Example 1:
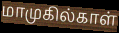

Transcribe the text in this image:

மாமுகில்காள்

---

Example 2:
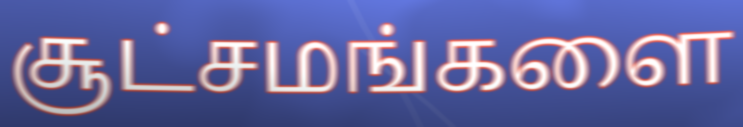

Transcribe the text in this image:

சூட்சமங்களை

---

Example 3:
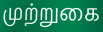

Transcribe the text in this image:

முற்றுகை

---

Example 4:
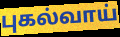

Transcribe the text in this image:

புகல்வாய்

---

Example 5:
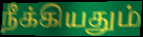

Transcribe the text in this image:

நீக்கியதும்